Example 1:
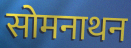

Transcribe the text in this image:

सोमनाथन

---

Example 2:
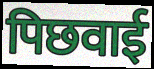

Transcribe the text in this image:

पिछवाई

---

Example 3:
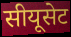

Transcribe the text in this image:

सीयूसेट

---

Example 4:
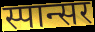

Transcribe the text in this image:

स्पान्सर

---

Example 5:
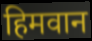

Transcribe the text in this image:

हिमवान